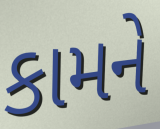
કામને